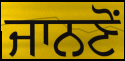
ਜਾਨਣੋਂ